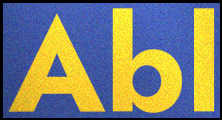
Abl